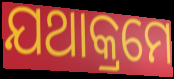
ଯଥାକ୍ରମେ